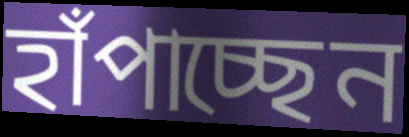
হাঁপাচ্ছেন